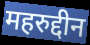
महरुद्दीन